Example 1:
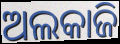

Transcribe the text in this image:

ଅଲକାଜି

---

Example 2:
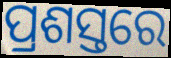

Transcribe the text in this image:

ପ୍ରଶସ୍ତରେ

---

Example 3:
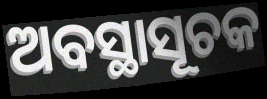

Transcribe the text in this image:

ଅବସ୍ଥାସୂଚକ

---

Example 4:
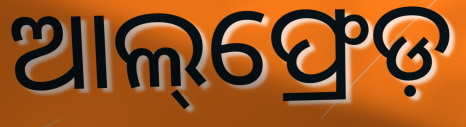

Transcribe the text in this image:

ଆଲ୍‌ଫ୍ରେଡ଼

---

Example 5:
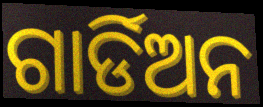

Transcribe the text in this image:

ଗାର୍ଡିଅନ